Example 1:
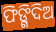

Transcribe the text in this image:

ଫିଙ୍ଗିଦିଅ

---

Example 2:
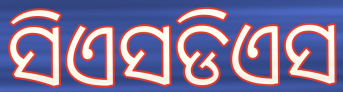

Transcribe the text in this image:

ସିଏସଡିଏସ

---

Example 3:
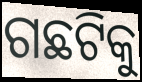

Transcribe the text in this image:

ଗଛଟିକୁ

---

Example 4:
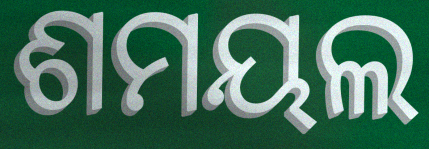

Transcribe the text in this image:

ଶମୟଲ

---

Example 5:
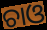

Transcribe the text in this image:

ଚାଓ